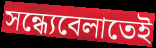
সন্ধ্যেবেলাতেই